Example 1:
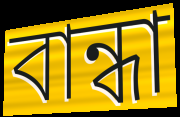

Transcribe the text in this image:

বান্ধা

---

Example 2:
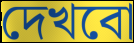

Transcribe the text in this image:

দেখবো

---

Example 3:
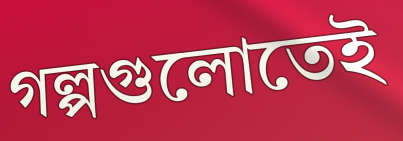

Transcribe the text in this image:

গল্পগুলোতেই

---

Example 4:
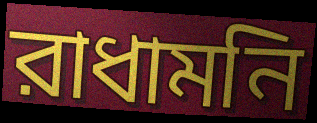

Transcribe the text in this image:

রাধামনি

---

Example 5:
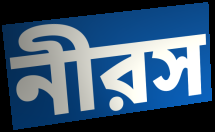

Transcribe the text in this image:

নীরস